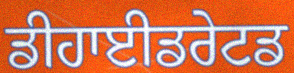
ਡੀਹਾਈਡਰੇਟਡ